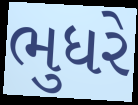
ભુધરે